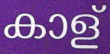
കാള്